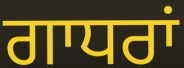
ਗਾਧਰਾਂ